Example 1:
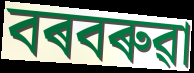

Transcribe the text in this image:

বৰবৰুৱা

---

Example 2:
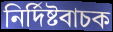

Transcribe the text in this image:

নিৰ্দিষ্টবাচক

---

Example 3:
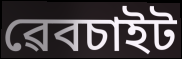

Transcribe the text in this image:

ৱেবচাইট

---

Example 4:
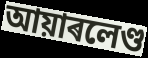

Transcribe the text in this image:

আয়াৰলেণ্ড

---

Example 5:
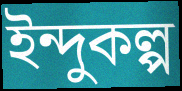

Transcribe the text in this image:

ইন্দুকল্প